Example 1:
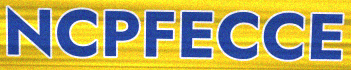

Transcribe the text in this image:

NCPFECCE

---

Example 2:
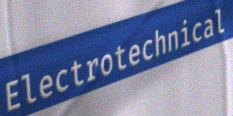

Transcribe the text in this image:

Electrotechnical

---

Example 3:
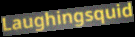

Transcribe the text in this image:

Laughingsquid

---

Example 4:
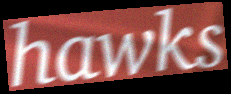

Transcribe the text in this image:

hawks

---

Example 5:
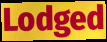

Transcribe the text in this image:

Lodged